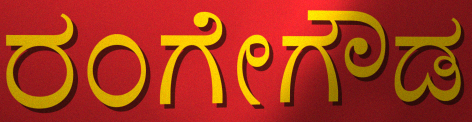
ರಂಗೇಗೌಡ